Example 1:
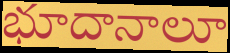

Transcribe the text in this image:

భూదానాలూ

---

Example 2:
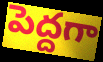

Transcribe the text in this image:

పెద్దగా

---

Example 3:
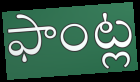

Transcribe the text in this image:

ఫాంట్ల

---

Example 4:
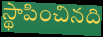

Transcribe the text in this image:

స్థాపించినది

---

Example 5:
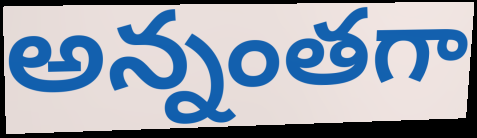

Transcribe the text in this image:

అన్నంతగా